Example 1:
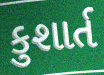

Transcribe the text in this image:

કુશાર્ત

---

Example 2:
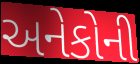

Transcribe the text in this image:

અનેકોની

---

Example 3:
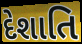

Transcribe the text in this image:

દેશાતિ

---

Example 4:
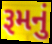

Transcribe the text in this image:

રૂમનું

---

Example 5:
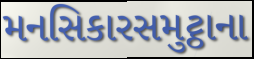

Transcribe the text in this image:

મનસિકારસમુટ્ઠાના